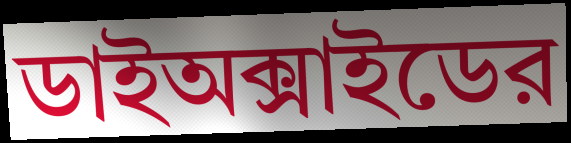
ডাইঅক্সাইডের